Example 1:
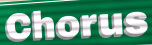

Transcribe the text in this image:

Chorus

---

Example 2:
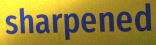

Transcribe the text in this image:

sharpened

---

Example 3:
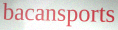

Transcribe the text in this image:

bacansports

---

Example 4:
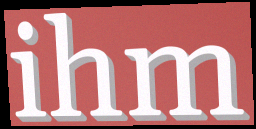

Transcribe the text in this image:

ihm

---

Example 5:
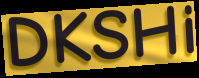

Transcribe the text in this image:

DKSHi